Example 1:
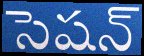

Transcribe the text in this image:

సెషన్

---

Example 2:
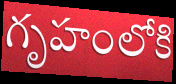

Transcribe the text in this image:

గృహంలోకి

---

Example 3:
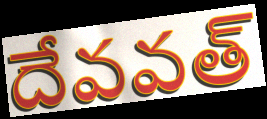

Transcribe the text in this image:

దేవవత్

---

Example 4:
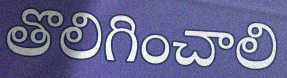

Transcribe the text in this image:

తొలిగించాలి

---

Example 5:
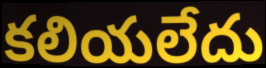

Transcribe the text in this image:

కలియలేదు